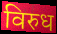
विरुध